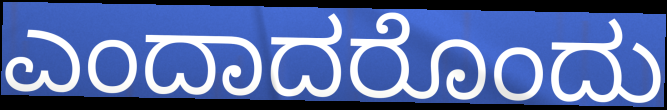
ಎಂದಾದರೊಂದು